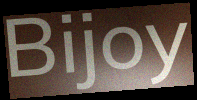
Bijoy